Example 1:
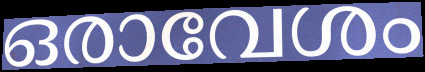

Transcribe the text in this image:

ഒരാവേശം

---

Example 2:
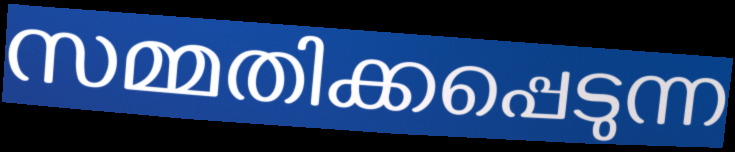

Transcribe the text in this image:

സമ്മതിക്കപ്പെടുന്ന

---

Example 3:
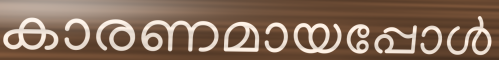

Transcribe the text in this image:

കാരണമായപ്പോൾ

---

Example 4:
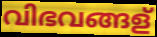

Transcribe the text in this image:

വിഭവങ്ങള്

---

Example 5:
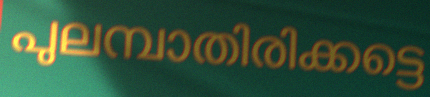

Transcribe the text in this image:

പുലമ്പാതിരിക്കട്ടെ